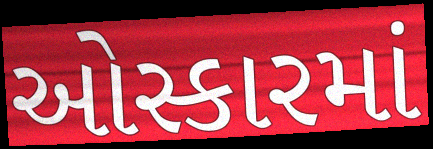
ઓસ્કારમાં